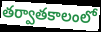
తర్వాతకాలంలో